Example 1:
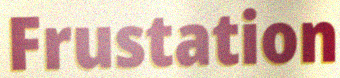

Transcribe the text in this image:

Frustation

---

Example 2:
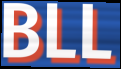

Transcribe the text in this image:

BLL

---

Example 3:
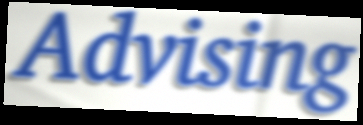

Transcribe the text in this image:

Advising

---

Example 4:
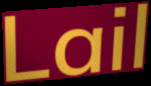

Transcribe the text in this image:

Lail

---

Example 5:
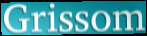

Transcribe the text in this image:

Grissom